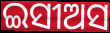
ଇସୀଅସ